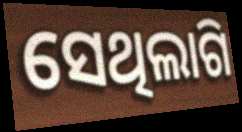
ସେଥିଲାଗି